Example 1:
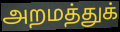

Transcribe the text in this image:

அறமத்துக்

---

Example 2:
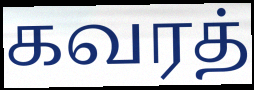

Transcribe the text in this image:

கவரத்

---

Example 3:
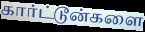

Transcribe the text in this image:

கார்ட்டூன்களை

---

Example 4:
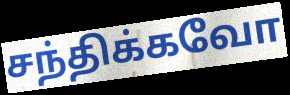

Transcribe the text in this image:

சந்திக்கவோ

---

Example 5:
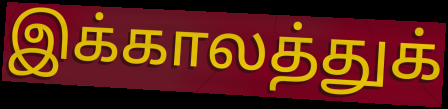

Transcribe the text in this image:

இக்காலத்துக்